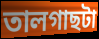
তালগাছটা